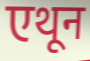
एथून